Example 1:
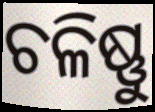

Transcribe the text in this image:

ଚଳିଷ୍ଣୁ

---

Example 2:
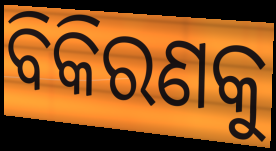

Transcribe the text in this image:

ବିକିରଣକୁ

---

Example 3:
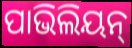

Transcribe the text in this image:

ପାଭିଲିୟନ୍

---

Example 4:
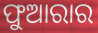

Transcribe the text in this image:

ଫୁଆରାର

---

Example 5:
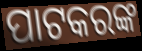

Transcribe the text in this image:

ପାଟକରଙ୍କ